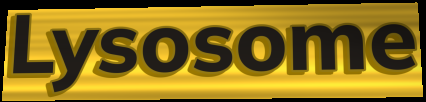
Lysosome